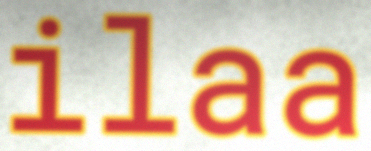
ilaa